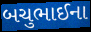
બચુભાઈના